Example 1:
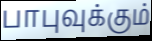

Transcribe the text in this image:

பாபுவுக்கும்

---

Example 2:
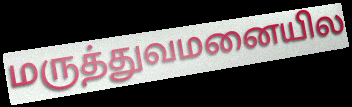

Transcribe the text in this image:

மருத்துவமனையில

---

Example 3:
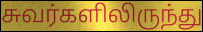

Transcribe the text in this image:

சுவர்களிலிருந்து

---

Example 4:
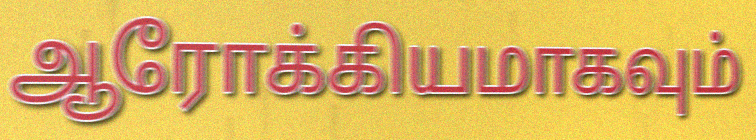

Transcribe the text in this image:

ஆரோக்கியமாகவும்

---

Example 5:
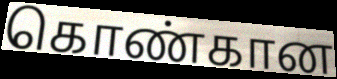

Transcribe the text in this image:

கொண்கான